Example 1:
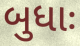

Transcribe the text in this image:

બુધાઃ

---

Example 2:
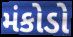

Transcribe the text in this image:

મંકોડો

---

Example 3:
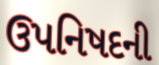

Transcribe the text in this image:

ઉપનિષદની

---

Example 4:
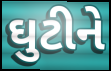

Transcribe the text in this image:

ઘુટીને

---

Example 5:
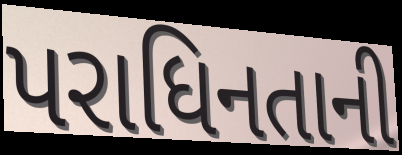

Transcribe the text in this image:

પરાધિનતાની